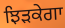
ਝਿੜਕੇਗਾ